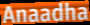
Anaadha